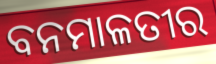
ବନମାଳତୀର